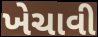
ખેચાવી